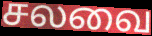
சலவை